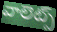
వాలెట్స్